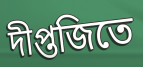
দীপ্তজিতে